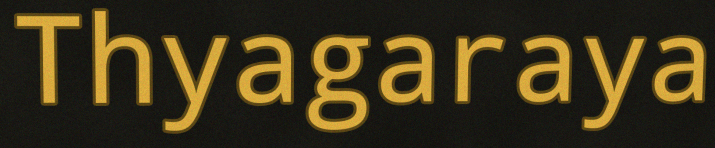
Thyagaraya